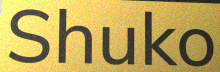
Shuko